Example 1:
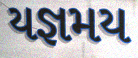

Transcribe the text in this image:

યજ્ઞમય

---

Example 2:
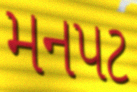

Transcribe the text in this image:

મનપટ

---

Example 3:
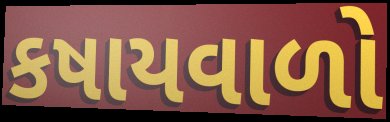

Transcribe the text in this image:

કષાયવાળો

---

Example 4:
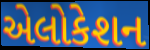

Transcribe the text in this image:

એલોકેશન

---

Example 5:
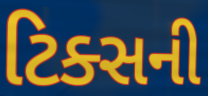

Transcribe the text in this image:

ટિક્સની